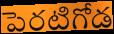
పెరటిగోడ